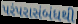
પરંપરાસંબંધથી